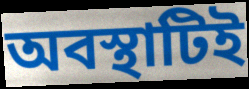
অবস্থাটিই